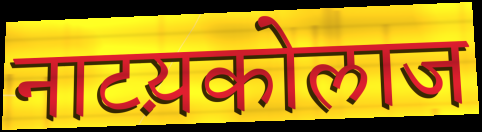
नाटय़कोलाज